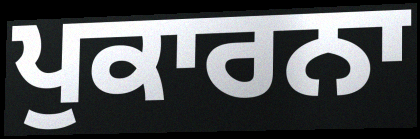
ਪੁਕਾਰਨਾ